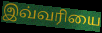
இவ்வரியை